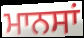
ਮਾਨਸਾਂ